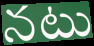
నటు